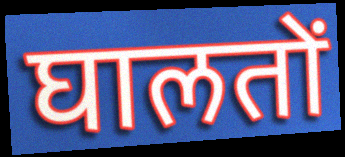
घालतों